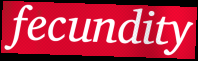
fecundity